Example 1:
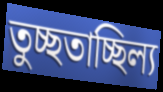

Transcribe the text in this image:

তুচ্ছতাচ্ছিল্য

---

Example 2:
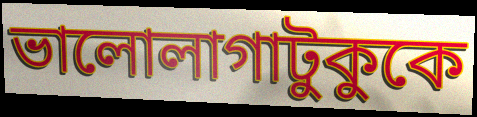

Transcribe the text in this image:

ভালোলাগাটুকুকে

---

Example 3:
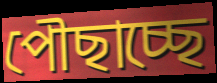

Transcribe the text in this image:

পৌছাচ্ছে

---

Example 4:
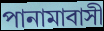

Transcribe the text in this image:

পানামাবাসী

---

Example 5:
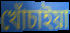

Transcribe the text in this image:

খোঁচাইয়া